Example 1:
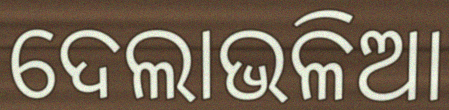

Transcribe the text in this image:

ଦେଲାଭଳିଆ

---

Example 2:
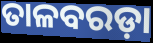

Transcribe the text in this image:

ତାଳବରଡ଼ା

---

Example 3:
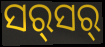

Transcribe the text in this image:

ସର୍‍ସର୍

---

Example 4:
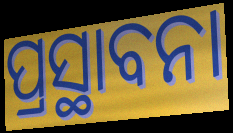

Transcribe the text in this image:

ପ୍ରସ୍ଥାବନା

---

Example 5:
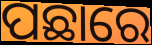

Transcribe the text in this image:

ପଛାରେ